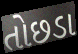
તોછડા